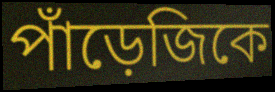
পাঁড়েজিকে